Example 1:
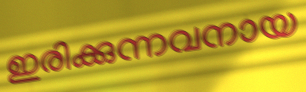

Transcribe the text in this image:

ഇരിക്കുന്നവനായ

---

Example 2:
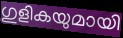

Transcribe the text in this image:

ഗുളികയുമായി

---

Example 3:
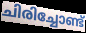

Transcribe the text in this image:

ചിരിച്ചോണ്ട്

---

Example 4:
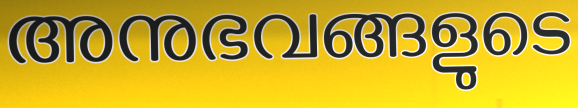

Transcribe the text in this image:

അനുഭവങ്ങളുടെ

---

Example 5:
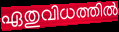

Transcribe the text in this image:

ഏതുവിധത്തിൽ